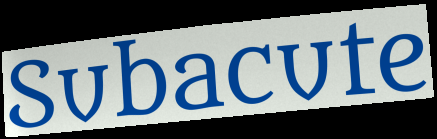
Subacute